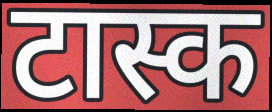
टास्क